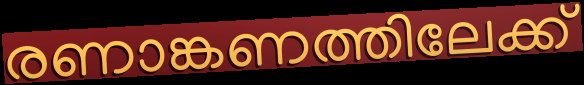
രണാങ്കണത്തിലേക്ക്